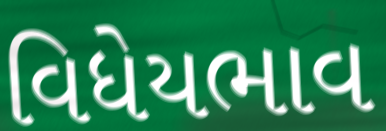
વિધેયભાવ